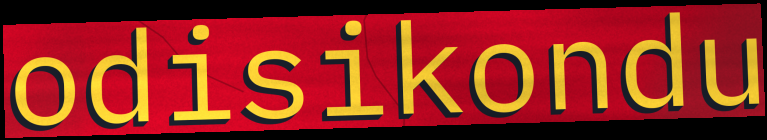
odisikondu